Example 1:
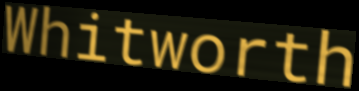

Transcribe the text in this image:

Whitworth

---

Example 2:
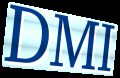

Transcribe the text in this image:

DMI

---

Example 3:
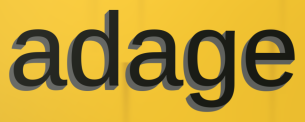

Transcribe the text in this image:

adage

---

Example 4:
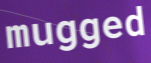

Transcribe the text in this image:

mugged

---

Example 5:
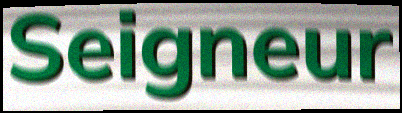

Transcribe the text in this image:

Seigneur